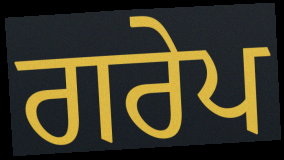
ਗਰੇਪ